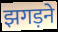
झगड़ने